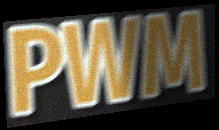
PWM